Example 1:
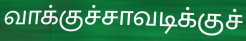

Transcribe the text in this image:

வாக்குச்சாவடிக்குச்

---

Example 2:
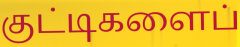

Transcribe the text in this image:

குட்டிகளைப்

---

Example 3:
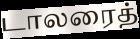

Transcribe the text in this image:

டாலரைத்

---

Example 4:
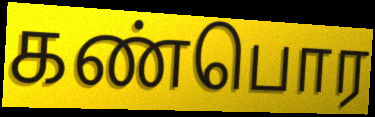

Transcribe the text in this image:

கண்பொர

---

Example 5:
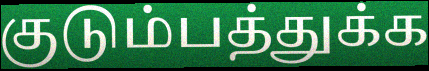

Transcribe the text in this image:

குடும்பத்துக்க